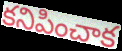
కనిపించాక